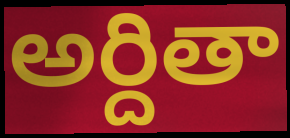
అర్దితా